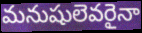
మనుషులెవరైనా